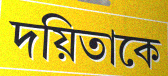
দয়িতাকে